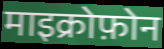
माइक्रोफ़ोन